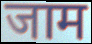
जाम